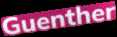
Guenther